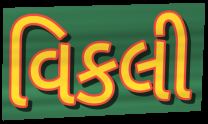
વિકલી